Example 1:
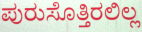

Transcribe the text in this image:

ಪುರುಸೊತ್ತಿರಲಿಲ್ಲ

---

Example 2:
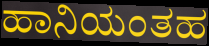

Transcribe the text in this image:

ಹಾನಿಯಂತಹ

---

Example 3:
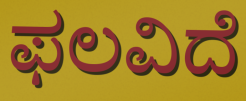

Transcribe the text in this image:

ಫಲವಿದೆ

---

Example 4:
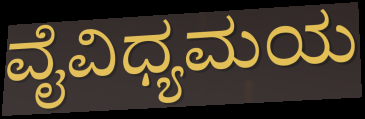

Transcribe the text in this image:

ವೈವಿಧ್ಯಮಯ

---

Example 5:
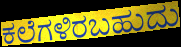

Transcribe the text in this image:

ಕಲೆಗಳಿರಬಹುದು